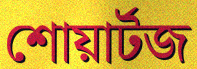
শোয়ার্টজ